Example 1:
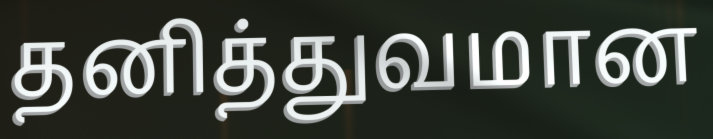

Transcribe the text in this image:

தனித்துவமான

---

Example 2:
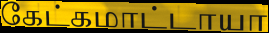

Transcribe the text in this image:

கேட்கமாட்டாயா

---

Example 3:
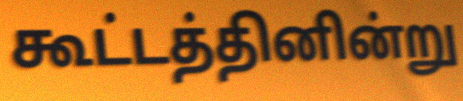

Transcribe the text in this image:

கூட்டத்தினின்று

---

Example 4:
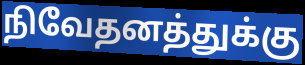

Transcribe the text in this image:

நிவேதனத்துக்கு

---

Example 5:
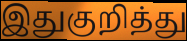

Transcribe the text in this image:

இதுகுறித்து